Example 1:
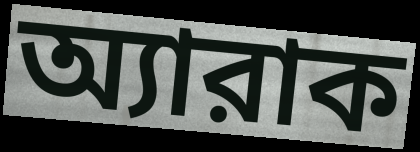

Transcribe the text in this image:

অ্যারাক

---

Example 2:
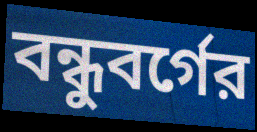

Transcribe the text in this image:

বন্ধুবর্গের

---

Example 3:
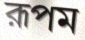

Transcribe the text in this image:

রূপম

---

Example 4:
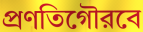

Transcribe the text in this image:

প্রণতিগৌরবে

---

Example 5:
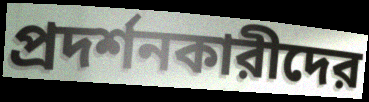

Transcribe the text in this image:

প্রদর্শনকারীদের